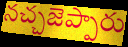
నచ్చజెప్పారు